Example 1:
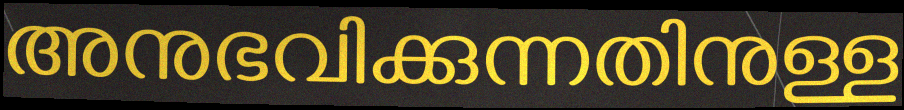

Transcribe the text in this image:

അനുഭവിക്കുന്നതിനുള്ള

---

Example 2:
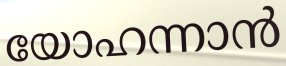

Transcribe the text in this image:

യോഹന്നാൻ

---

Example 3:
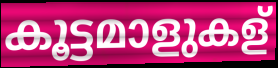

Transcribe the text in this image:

കൂട്ടമാളുകള്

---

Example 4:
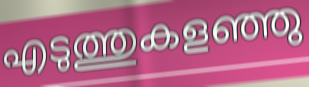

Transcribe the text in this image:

എടുത്തുകളഞ്ഞു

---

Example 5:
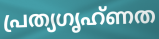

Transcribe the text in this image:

പ്രത്യഗൃഹ്ണത